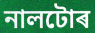
নালটোৰ